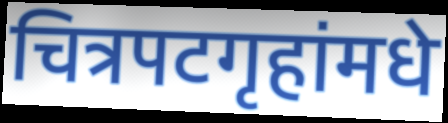
चित्रपटगृहांमधे